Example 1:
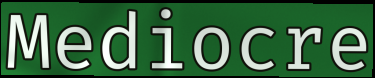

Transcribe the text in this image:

Mediocre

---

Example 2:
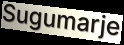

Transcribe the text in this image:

Sugumarje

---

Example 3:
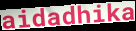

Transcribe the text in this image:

aidadhika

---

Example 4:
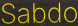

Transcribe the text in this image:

Sabdo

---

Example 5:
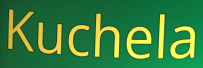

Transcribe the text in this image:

Kuchela